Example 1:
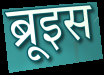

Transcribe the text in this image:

ब्रूइस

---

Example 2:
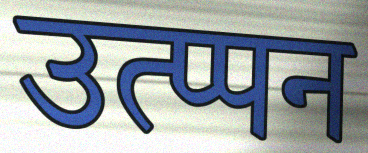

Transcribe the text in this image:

उत्प्पन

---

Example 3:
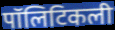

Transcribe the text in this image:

पॉलिटिकली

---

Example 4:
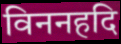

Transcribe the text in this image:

विननहदि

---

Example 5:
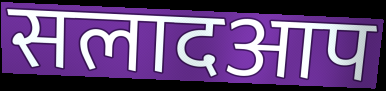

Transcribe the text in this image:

सलादआप